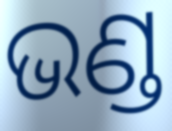
ଭଣ୍ଡ